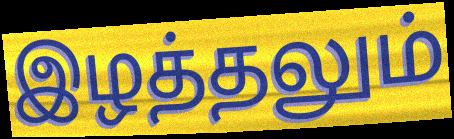
இழத்தலும்